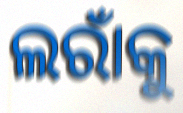
ଲରାଁକୁ